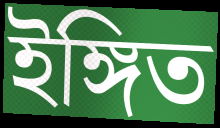
ইঙ্গিত